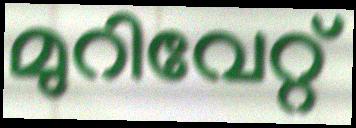
മുറിവേറ്റ്